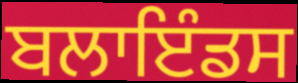
ਬਲਾਇੰਡਸ